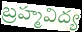
బ్రహ్మవిద్య